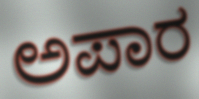
ಅಪಾರ